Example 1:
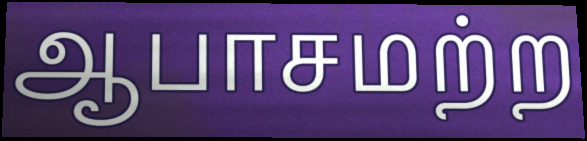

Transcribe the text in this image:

ஆபாசமற்ற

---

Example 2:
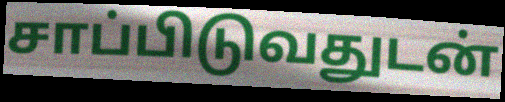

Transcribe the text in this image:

சாப்பிடுவதுடன்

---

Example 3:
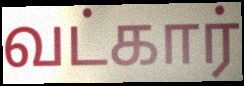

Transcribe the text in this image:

வட்கார்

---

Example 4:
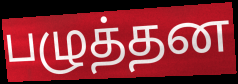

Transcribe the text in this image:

பழுத்தன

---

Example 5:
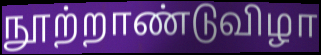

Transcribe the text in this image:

நூற்றாண்டுவிழா